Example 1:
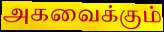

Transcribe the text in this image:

அகவைக்கும்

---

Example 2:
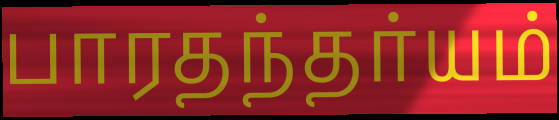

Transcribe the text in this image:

பாரதந்தர்யம்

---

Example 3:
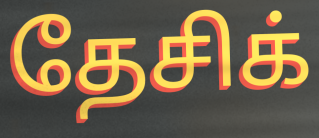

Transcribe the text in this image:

தேசிக்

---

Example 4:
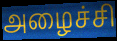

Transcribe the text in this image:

அழைச்சி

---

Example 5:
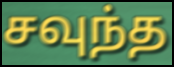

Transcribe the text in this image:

சவுந்த